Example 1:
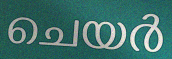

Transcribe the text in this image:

ചെയർ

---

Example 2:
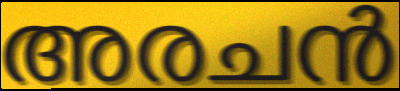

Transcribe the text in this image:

അരചൻ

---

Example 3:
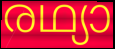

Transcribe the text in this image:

രഥ്യാ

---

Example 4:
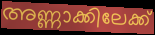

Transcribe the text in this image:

അണ്ണാക്കിലേക്ക്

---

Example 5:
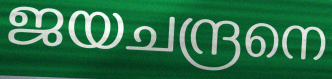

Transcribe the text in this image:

ജയചന്ദ്രനെ